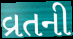
વ્રતની